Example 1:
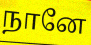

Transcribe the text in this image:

நானே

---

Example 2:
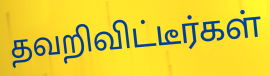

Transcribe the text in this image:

தவறிவிட்டீர்கள்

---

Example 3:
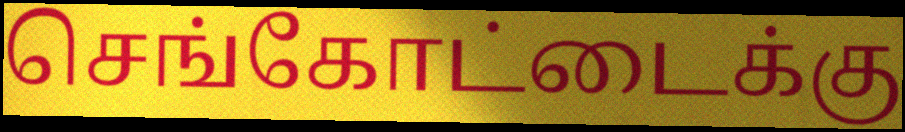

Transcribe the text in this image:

செங்கோட்டைக்கு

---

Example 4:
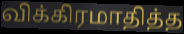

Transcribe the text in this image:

விக்கிரமாதித்த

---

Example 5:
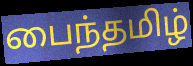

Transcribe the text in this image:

பைந்தமிழ்